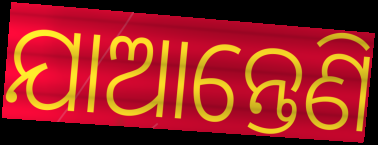
ଯାଆନ୍ତେଣି